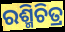
ରଶ୍ମିଚିତ୍ର